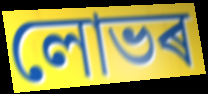
লোভৰ